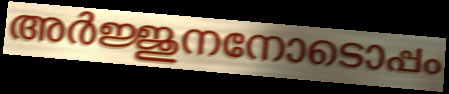
അർജ്ജുനനോടൊപ്പം